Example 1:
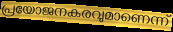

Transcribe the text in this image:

പ്രയോജനകരവുമാണെന്ന്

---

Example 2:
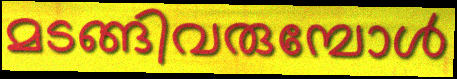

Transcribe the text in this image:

മടങ്ങിവരുമ്പോൾ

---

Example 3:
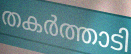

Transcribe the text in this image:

തകർത്താടി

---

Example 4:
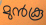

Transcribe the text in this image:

മുൻകൂ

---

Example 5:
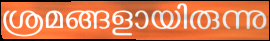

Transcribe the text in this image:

ശ്രമങ്ങളായിരുന്നു